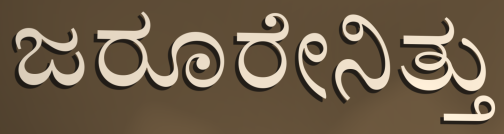
ಜರೂರೇನಿತ್ತು